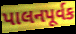
પાલનપૂર્વક